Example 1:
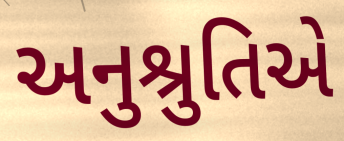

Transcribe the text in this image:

અનુશ્રુતિએ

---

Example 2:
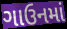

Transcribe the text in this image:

ગાઉનમાં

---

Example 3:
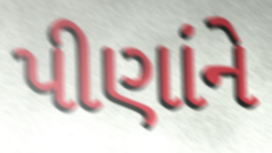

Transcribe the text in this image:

પીણાંને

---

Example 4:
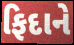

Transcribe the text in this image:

ફિદાને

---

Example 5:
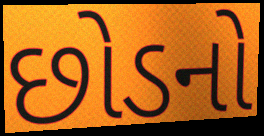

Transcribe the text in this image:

છોડનો